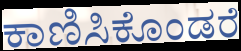
ಕಾಣಿಸಿಕೊಂಡರೆ